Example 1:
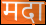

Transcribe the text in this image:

मदा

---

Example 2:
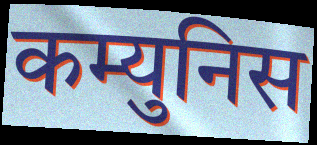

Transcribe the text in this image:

कम्युनिस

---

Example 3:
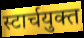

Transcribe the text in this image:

स्टार्चयुक्त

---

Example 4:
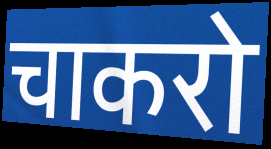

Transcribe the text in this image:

चाकरो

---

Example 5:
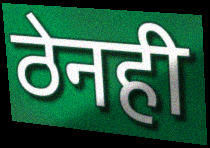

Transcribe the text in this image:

ठेनही